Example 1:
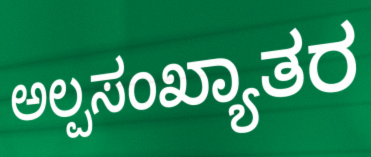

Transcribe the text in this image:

ಅಲ್ಪಸಂಖ್ಯಾತರ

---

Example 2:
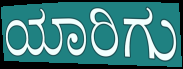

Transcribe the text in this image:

ಯಾರಿಗು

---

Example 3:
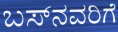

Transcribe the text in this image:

ಬಸ್‌ನವರಿಗೆ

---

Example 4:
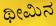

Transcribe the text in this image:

ಥೀಮಿನ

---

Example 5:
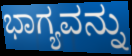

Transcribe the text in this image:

ಭಾಗ್ಯವನ್ನು